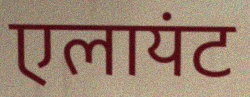
एलायंट